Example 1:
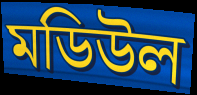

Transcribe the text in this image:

মডিউল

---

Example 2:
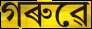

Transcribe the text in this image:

গৰুৱে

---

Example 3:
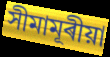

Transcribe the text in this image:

সীমামূৰীয়া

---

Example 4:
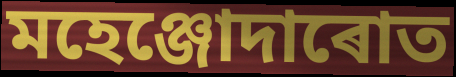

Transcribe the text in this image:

মহেঞ্জোদাৰোত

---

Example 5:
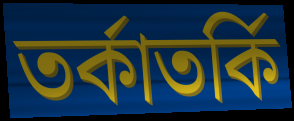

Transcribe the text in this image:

তৰ্কাতৰ্কি